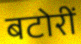
बटोरीं